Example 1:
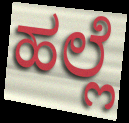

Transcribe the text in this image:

ಹಲ್ಲೆ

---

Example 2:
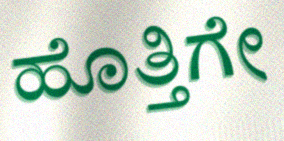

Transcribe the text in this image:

ಹೊತ್ತಿಗೇ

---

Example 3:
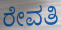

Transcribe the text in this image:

ರೇವತಿ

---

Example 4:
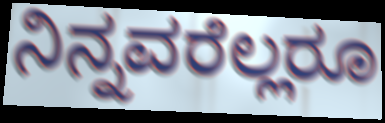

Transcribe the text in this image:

ನಿನ್ನವರೆಲ್ಲರೂ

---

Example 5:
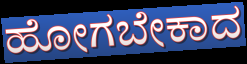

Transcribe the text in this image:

ಹೋಗಬೇಕಾದ